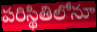
పరిస్థితిలోనూ